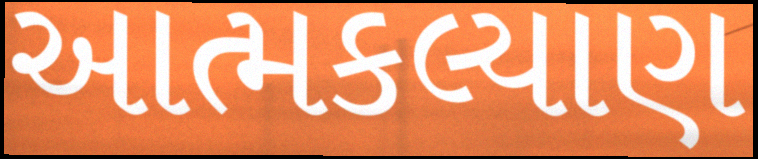
આત્મકલ્યાણ